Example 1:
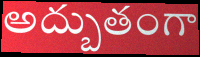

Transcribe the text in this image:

అద్బుతంగా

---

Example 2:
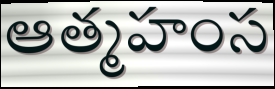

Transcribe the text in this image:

ఆత్మహంస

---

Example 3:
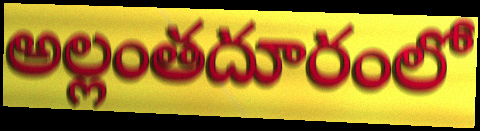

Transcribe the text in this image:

అల్లంతదూరంలో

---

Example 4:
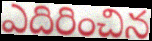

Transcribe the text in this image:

ఎదిరించిన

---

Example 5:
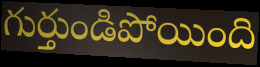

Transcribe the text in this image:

గుర్తుండిపోయింది